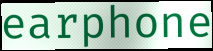
earphone